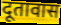
दूतावास